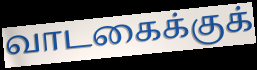
வாடகைக்குக்